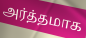
அர்த்தமாக